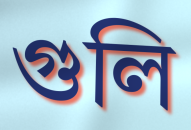
গুলি